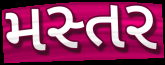
મસ્તર